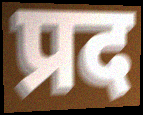
प्रद